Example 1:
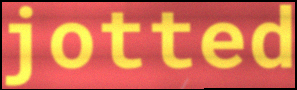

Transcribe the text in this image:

jotted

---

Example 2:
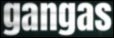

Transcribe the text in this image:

gangas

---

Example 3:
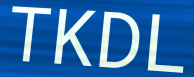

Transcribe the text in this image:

TKDL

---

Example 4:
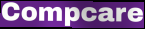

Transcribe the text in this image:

Compcare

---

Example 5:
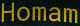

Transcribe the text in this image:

Homam